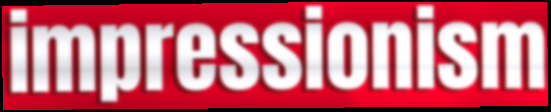
impressionism